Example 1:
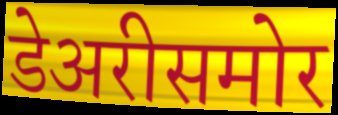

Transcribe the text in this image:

डेअरीसमोर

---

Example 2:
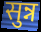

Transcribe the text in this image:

सुन्न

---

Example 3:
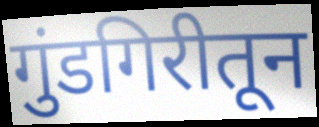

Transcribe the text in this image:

गुंडगिरीतून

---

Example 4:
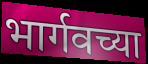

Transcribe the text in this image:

भार्गवच्या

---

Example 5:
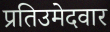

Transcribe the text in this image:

प्रतिउमेदवार